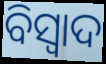
ବିସ୍ଵାଦ